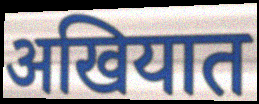
अखियात